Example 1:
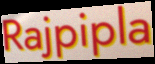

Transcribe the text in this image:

Rajpipla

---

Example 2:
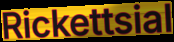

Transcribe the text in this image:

Rickettsial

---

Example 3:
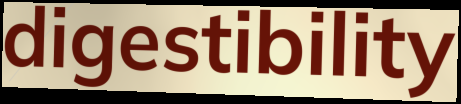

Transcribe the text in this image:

digestibility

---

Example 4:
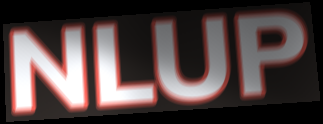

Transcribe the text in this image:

NLUP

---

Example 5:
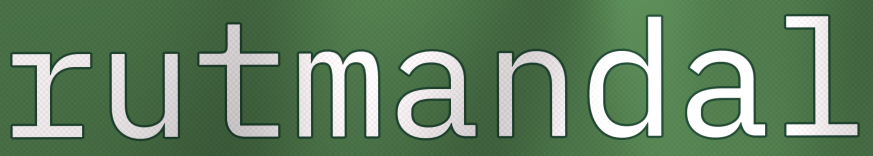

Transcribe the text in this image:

rutmandal